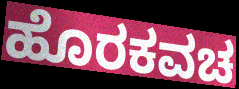
ಹೊರಕವಚ